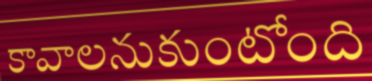
కావాలనుకుంటోంది